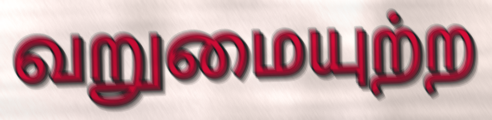
வறுமையுற்ற